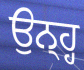
ਉਨ੍ਹ੍ਹ